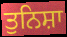
ਤੁਨਿਸ਼ਾ